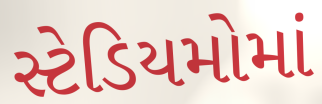
સ્ટેડિયમોમાં